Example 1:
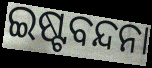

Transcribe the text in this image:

ଇଷ୍ଟବନ୍ଦନା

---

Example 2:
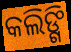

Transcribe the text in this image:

କଲିଙ୍ଗି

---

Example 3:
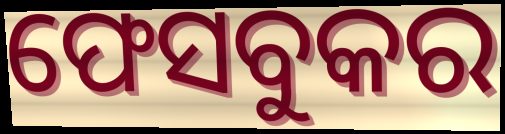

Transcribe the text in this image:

ଫେସବୁକର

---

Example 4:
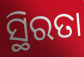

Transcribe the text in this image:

ସ୍ଥିରତା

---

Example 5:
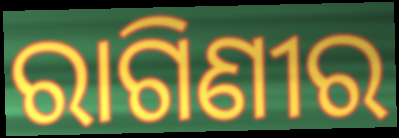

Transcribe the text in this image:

ରାଗିଣୀର